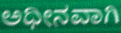
ಅಧೀನವಾಗಿ